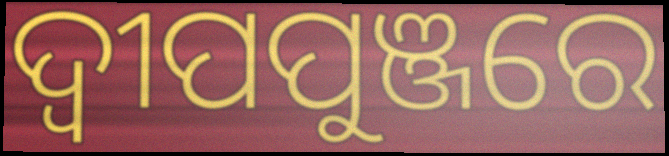
ଦ୍ୱୀପପୁଞ୍ଜରେ